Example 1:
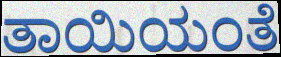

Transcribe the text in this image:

ತಾಯಿಯಂತೆ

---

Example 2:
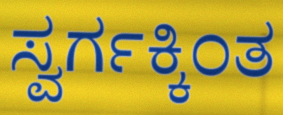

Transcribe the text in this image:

ಸ್ವರ್ಗಕ್ಕಿಂತ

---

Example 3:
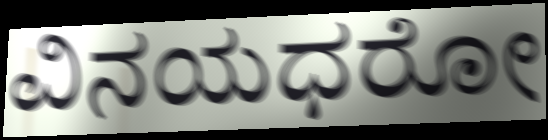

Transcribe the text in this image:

ವಿನಯಧರೋ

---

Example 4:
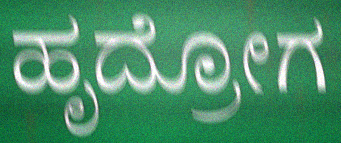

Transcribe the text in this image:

ಹೃದ್ರೋಗ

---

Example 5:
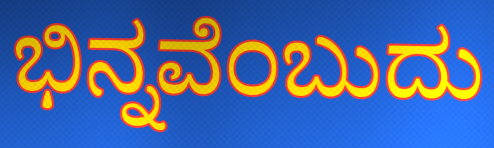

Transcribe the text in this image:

ಭಿನ್ನವೆಂಬುದು